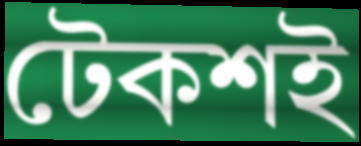
টেকশই